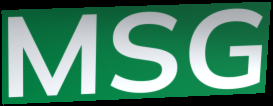
MSG